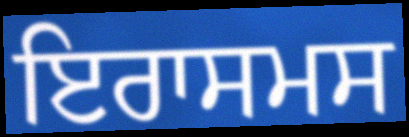
ਇਰਾਸਮਸ